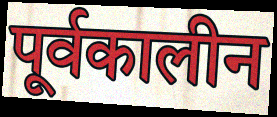
पूर्वकालीन